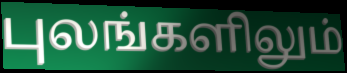
புலங்களிலும்